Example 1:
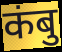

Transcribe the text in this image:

कंबु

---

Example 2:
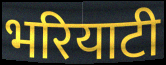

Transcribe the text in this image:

भरियाटी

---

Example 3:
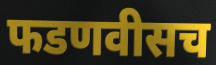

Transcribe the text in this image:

फडणवीसच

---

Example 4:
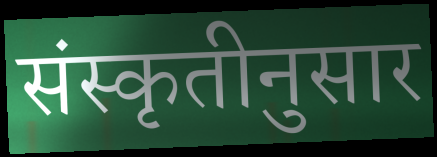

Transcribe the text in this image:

संस्कृतीनुसार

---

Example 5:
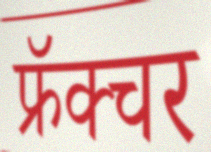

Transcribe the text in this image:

फ्रॅक्चर